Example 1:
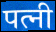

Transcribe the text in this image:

पत्‍नी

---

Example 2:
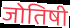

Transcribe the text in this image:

जोतिषी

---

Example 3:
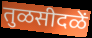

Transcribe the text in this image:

तुळसीदळें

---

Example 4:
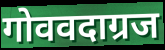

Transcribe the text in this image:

गोववदाग्रज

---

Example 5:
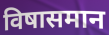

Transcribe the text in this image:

विषासमान